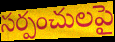
సర్పంచులపై